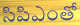
సిపిఎంతో